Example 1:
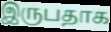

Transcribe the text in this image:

இருபதாக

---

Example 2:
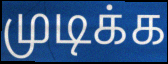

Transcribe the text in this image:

முடிக்க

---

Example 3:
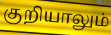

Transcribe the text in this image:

குறியாலும்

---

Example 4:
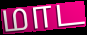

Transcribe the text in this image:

மாட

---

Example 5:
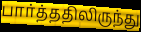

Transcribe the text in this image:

பார்த்ததிலிருந்து